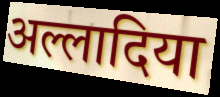
अल्लादिया